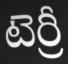
టెర్రీ